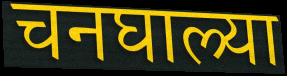
चनघाल्या